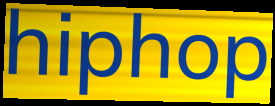
hiphop